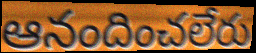
ఆనందించలేరు